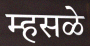
म्हसळे